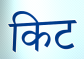
किट